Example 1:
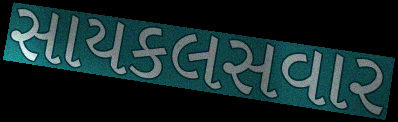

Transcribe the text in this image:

સાયકલસવાર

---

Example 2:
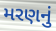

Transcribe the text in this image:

મરણનું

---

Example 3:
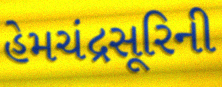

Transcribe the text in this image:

હેમચંદ્રસૂરિની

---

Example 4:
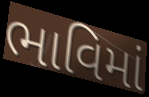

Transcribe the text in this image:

ભાવિમાં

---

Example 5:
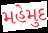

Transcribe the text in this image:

મહેમુદ